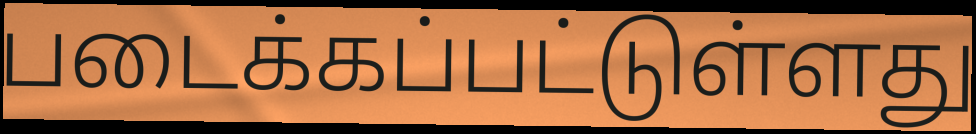
படைக்கப்பட்டுள்ளது